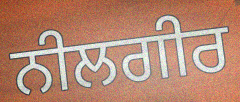
ਨੀਲਗੀਰ